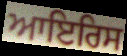
ਆਇਰਿਸ